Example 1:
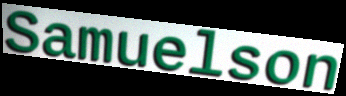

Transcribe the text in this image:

Samuelson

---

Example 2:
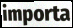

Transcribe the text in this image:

importa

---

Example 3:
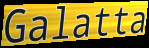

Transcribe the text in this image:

Galatta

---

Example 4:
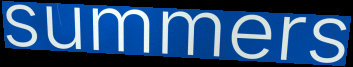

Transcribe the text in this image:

summers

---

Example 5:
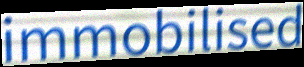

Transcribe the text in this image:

immobilised